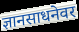
ज्ञानसाधनेवर